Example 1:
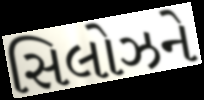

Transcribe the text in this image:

સિલોઝને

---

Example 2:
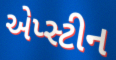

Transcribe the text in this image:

એપ્સ્ટીન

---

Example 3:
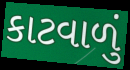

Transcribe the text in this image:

કાટવાળું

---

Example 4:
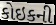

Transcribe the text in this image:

કોઇકની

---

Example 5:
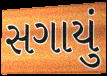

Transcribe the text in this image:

સગાયું